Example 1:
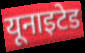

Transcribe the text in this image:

यूनाइटेड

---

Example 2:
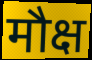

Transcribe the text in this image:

मौक्ष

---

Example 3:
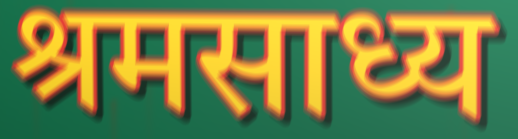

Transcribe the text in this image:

श्रमसाध्य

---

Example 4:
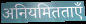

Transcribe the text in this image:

अनियमितताएँ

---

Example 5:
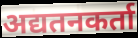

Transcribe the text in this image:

अद्यतनकर्ता